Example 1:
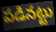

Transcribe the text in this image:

పడినట్టు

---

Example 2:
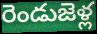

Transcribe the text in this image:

రెండుజెళ్ల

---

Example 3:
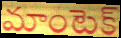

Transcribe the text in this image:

మాంటెక్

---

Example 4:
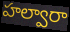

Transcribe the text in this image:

హల్వారా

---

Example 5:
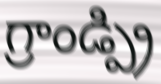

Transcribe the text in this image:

గ్రాండ్ప్రి